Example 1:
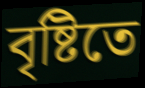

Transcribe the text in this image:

বৃষ্টিতে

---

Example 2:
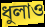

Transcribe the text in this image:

ধুলাও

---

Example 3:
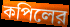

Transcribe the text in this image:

কপিলের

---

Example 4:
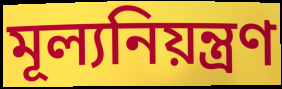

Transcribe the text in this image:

মূল্যনিয়ন্ত্রণ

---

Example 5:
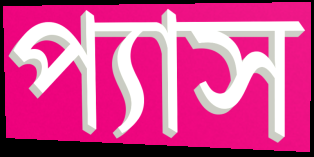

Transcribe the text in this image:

প্যাস